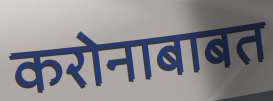
करोनाबाबत